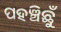
ପହଞ୍ଚିଛୁଁ